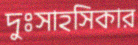
দুঃসাহসিকার